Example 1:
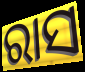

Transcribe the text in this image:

ରାସ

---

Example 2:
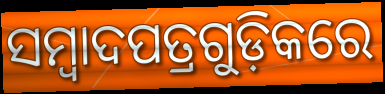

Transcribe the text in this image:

ସମ୍ୱାଦପତ୍ରଗୁଡ଼ିକରେ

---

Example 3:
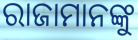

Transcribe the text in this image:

ରାଜାମାନଙ୍କୁ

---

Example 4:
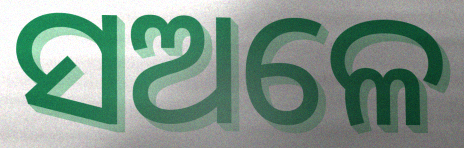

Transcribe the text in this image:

ସଅଳେ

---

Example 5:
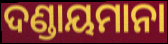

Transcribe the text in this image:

ଦଣ୍ଡାୟମାନା